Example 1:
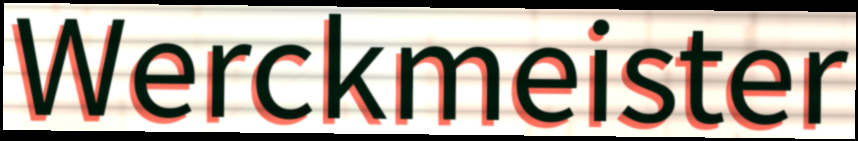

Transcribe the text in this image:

Werckmeister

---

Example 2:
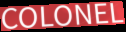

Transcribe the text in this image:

COLONEL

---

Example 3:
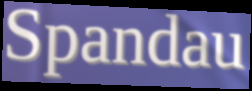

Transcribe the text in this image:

Spandau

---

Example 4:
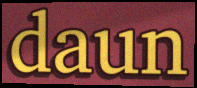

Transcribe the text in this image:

daun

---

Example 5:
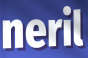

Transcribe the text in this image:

neril